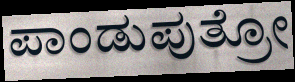
ಪಾಂಡುಪುತ್ರೋ